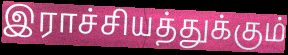
இராச்சியத்துக்கும்